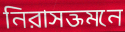
নিরাসক্তমনে